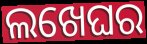
ଲଖେଘର